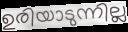
ഉരിയാടുന്നില്ല